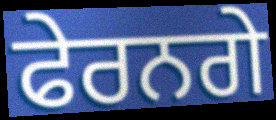
ਫੇਰਨਗੇ